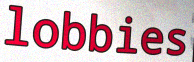
lobbies